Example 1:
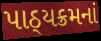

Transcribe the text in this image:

પાઠ્યક્રમનાં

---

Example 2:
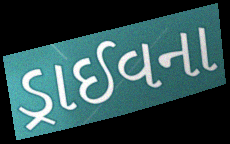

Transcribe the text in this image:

ડ્રાઈવના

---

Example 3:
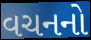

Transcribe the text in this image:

વચનનો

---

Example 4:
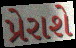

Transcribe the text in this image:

પ્રેરાશે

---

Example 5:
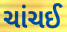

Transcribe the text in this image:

ચાંચઈ